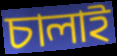
চালাই